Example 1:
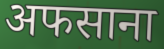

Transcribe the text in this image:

अफसाना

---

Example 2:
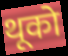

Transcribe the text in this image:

थूको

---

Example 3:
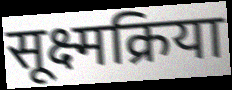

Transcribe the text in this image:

सूक्ष्मक्रिया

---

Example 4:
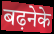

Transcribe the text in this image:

बढ़नेके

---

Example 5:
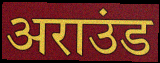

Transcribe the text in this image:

अराउंड